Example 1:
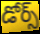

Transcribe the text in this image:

డోర్స్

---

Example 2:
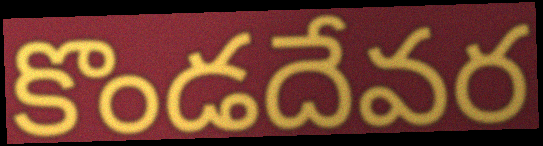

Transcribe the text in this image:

కొండదేవర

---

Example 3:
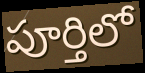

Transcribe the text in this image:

పూర్తిలో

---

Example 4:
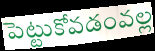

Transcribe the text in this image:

పెట్టుకోవడంవల్ల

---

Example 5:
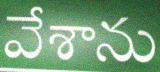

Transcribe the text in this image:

వేశాను